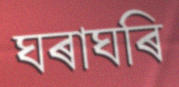
ঘৰাঘৰি